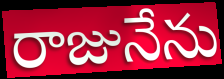
రాజునేను